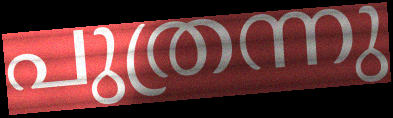
പുത്രന്നു